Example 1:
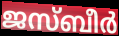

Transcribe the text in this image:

ജസ്ബീർ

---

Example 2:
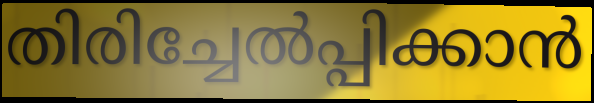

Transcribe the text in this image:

തിരിച്ചേൽപ്പിക്കാൻ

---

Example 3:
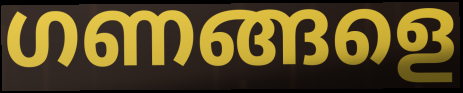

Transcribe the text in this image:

ഗണങ്ങളെ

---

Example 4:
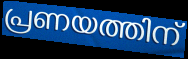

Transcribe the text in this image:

പ്രണയത്തിന്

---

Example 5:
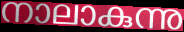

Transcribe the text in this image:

നാലാകുന്നു